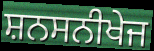
ਸ਼ਨਸਨੀਖੇਜ